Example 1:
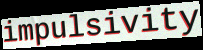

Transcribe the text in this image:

impulsivity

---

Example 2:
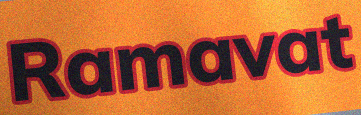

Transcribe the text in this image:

Ramavat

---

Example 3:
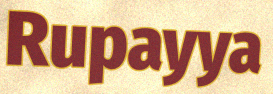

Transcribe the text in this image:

Rupayya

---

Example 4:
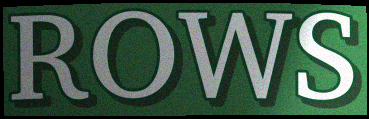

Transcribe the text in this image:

ROWS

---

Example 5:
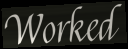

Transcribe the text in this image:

Worked